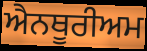
ਐਨਥੂਰੀਅਮ